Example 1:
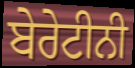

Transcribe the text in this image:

ਬੇਰੇਟੀਨੀ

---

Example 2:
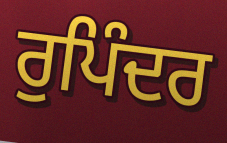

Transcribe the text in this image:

ਰੁਪਿੰਦਰ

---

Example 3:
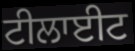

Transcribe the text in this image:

ਟੀਲਾਈਟ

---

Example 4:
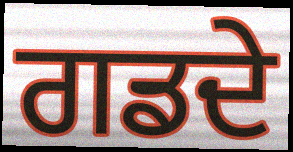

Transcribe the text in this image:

ਗਡਦੇ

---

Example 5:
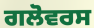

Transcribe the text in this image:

ਗਲੋਵਰਸ